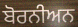
ਬੋਰਨੀਅਨ